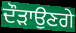
ਦੌੜਾਉਣਗੇ